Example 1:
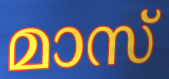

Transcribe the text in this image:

മാസ്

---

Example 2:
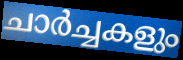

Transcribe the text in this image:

ചാർച്ചകളും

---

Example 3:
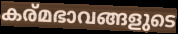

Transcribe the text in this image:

കര്മഭാവങ്ങളുടെ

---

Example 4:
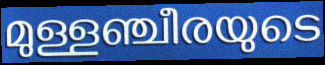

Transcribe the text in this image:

മുള്ളഞ്ചീരയുടെ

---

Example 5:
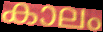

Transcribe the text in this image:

കാലം